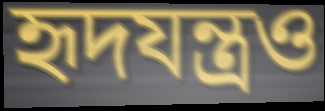
হৃদযন্ত্রও